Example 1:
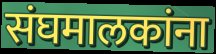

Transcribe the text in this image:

संघमालकांना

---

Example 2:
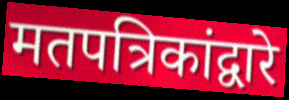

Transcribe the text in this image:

मतपत्रिकांद्वारे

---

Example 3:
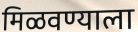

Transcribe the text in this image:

मिळवण्याला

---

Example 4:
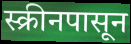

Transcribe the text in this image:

स्क्रीनपासून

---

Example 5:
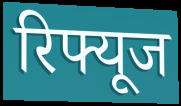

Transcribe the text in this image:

रिफ्यूज